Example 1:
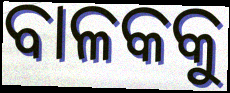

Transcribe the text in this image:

ବାଳକକୁ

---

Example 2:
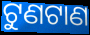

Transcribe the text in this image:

ଟୁଣଟାଣ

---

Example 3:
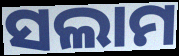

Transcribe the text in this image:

ସଲାମ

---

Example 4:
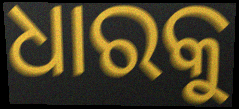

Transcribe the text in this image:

ଧାରକୁ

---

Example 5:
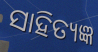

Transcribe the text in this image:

ସାହିତ୍ୟଜ୍ଞ